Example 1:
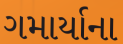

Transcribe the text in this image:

ગમાર્યાના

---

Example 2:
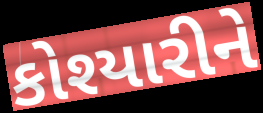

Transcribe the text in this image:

કોશ્યારીને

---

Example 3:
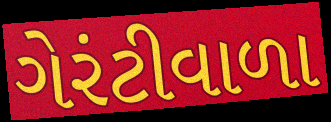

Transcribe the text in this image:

ગેરંટીવાળા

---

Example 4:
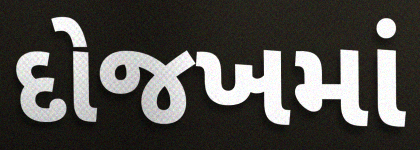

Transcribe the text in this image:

દોજખમાં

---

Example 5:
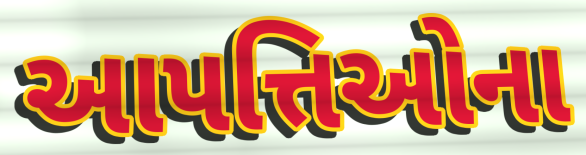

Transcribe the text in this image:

આપત્તિઓના